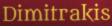
Dimitrakis